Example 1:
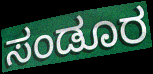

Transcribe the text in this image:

ಸಂಡೂರ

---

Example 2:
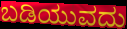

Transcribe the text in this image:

ಬಡಿಯುವದು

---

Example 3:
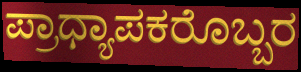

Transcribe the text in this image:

ಪ್ರಾಧ್ಯಾಪಕರೊಬ್ಬರ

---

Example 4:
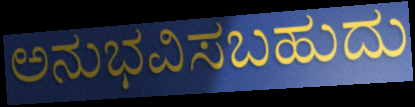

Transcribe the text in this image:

ಅನುಭವಿಸಬಹುದು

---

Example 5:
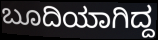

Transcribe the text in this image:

ಬೂದಿಯಾಗಿದ್ದ